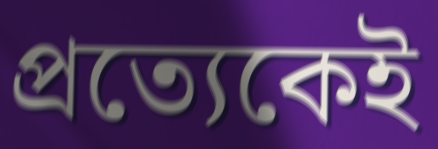
প্রত্যেকেই